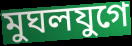
মুঘলযুগে